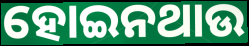
ହୋଇନଥାଉ